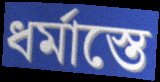
ধর্মাস্তে